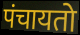
पंचायतो